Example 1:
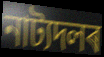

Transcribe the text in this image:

নাট্যদলৰ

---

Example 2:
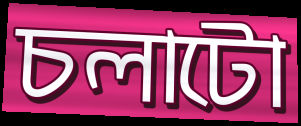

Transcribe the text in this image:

চলাটো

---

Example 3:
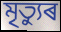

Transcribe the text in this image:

মৃত্যুৰ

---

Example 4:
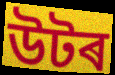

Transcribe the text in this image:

উটৰ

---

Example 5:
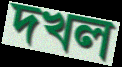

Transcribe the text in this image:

দখল